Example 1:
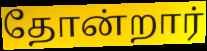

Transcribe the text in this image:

தோன்றார்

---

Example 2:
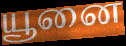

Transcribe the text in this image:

யூனை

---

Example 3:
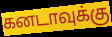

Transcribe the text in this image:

கனடாவுக்கு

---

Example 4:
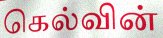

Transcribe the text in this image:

கெல்வின்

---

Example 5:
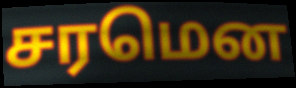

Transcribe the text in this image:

சரமென